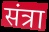
संत्रा